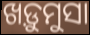
ଖଡ଼ୁମୁସା